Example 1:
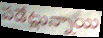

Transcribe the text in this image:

పడేట్లున్నాయి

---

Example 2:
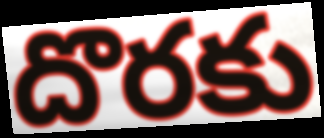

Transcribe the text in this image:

దొరకు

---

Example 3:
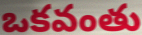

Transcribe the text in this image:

ఒకవంతు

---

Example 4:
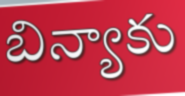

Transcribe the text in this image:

బిన్యాకు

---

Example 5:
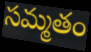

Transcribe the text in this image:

సమ్మతం